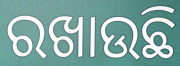
ରଖାଉଛି